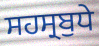
ਸਹਸ੍ਰਬੁਧੇ